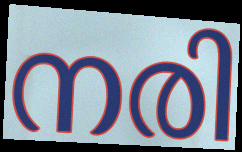
നരി